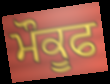
ਮੌਕੂਫ